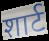
शार्ट